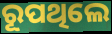
ରୂପଥିଲେ